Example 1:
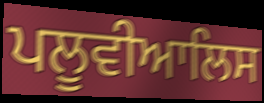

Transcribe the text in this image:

ਪਲੂਵੀਆਲਿਸ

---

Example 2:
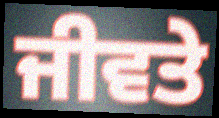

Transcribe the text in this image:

ਜੀਵਤੇ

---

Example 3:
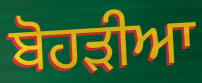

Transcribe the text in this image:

ਬੋਹੜੀਆ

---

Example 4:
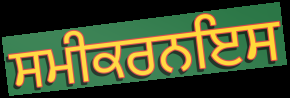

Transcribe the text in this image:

ਸਮੀਕਰਨਇਸ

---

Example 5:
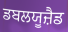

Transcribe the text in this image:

ਡਬਲਯੂਜ਼ੈਡ